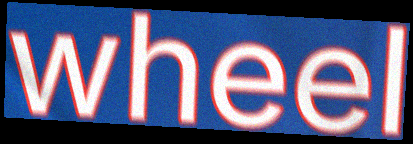
wheel